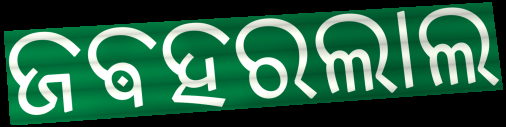
ଜଵହରଲାଲ